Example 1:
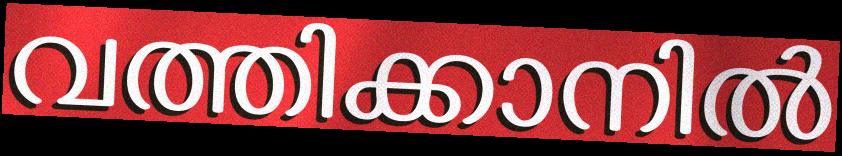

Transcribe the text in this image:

വത്തിക്കാനിൽ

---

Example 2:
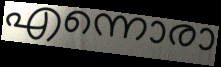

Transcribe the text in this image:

എന്നൊരാ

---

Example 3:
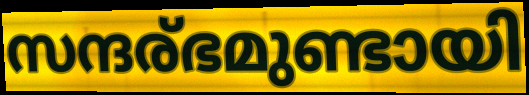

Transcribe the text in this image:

സന്ദര്ഭമുണ്ടായി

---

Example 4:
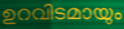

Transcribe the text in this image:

ഉറവിടമായും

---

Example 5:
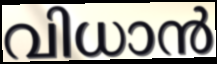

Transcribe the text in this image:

വിധാൻ